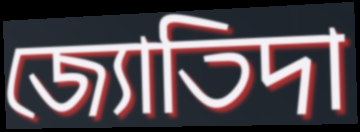
জ্যোতিদা